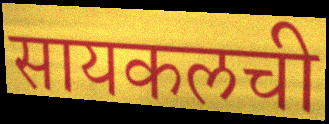
सायकलची